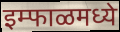
इम्फाळमध्ये